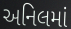
અનિલમાં